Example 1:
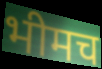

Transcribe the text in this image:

भीमच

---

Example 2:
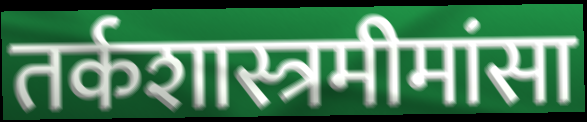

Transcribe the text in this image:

तर्कशास्त्रमीमांसा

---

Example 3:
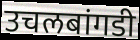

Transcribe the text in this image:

उचलबांगडी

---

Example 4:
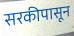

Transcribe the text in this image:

सरकीपासून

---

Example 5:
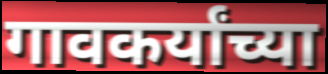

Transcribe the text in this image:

गावकर्यांच्या